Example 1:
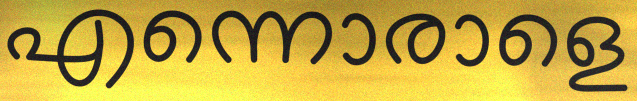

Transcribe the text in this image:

എന്നൊരാളെ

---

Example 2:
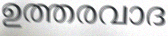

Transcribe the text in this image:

ഉത്തരവാദ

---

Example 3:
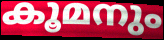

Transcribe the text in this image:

കൂമനും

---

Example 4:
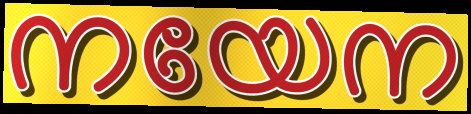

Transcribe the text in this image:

നയേന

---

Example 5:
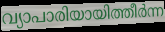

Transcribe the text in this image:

വ്യാപാരിയായിത്തീർന്ന